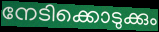
നേടിക്കൊടുക്കും